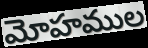
మోహముల